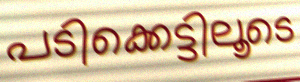
പടിക്കെട്ടിലൂടെ